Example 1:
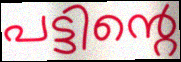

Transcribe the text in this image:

പട്ടിന്റെ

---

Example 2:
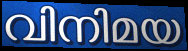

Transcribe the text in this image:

വിനിമയ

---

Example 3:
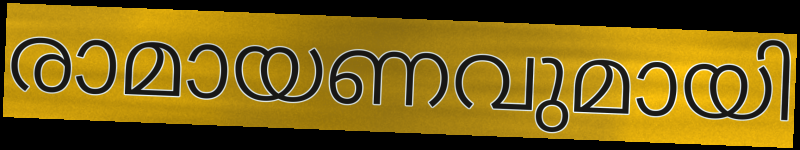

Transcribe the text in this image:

രാമായണവുമായി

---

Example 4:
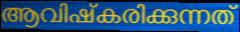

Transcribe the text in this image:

ആവിഷ്‌കരിക്കുന്നത്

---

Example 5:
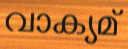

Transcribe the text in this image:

വാക്യമ്